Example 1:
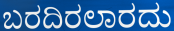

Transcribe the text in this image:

ಬರದಿರಲಾರದು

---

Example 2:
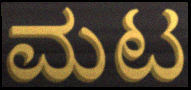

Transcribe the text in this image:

ಮಟ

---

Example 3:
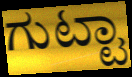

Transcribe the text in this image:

ಗುಟ್ಟಾ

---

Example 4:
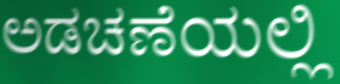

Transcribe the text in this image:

ಅಡಚಣೆಯಲ್ಲಿ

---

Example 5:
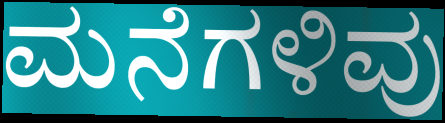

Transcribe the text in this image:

ಮನೆಗಳಿವು